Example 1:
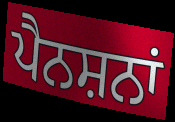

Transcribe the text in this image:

ਪੈਨਸ਼ਨਾਂ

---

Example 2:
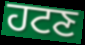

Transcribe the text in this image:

ਹਟਣ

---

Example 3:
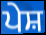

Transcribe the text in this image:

ਪੇਸ਼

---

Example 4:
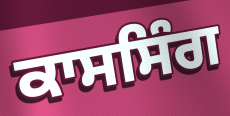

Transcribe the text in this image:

ਕਾਸਸਿੰਗ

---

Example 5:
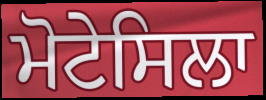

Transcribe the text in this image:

ਮੋਟੇਸਿਲਾ